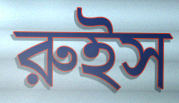
রুইস